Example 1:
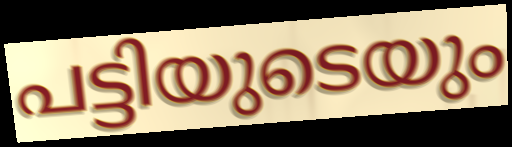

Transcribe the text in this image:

പട്ടിയുടെയും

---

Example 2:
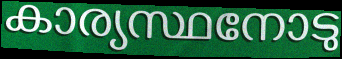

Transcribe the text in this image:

കാര്യസ്ഥനോടു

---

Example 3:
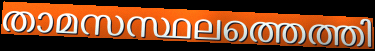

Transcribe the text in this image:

താമസസ്ഥലത്തെത്തി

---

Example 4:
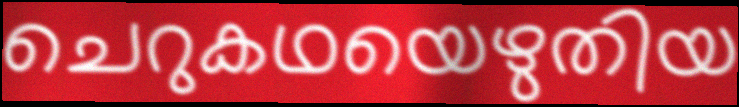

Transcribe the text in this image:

ചെറുകഥയെഴുതിയ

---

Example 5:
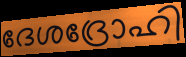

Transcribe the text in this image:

ദേശദ്രോഹി